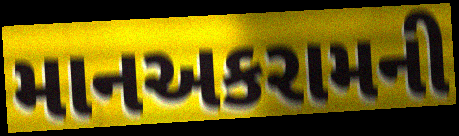
માનઅકરામની